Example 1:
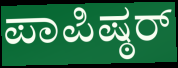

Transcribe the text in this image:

ಪಾಪಿಷ್ಠರ್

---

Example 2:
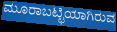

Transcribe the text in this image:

ಮೂರಾಬಟ್ಟೆಯಾಗಿರುವ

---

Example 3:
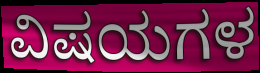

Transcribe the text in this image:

ವಿಷಯಗಳ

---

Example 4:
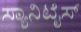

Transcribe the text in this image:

ಸ್ಯಾನಿಟೈಸ್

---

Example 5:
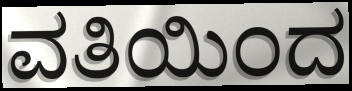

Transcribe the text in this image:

ವತಿಯಿಂದ